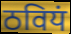
ठवियं